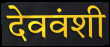
देववंशी